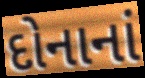
દોનાનાં